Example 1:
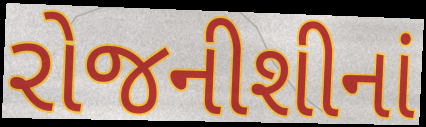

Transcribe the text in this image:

રોજનીશીનાં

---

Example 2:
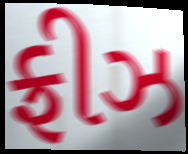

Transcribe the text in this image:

ફ્રીઝ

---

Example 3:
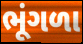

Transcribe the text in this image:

ભૂંગળા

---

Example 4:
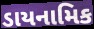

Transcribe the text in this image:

ડાયનામિક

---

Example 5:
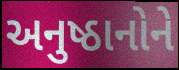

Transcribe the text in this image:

અનુષ્ઠાનોને